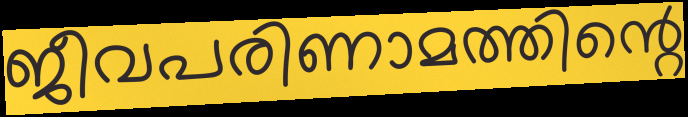
ജീവപരിണാമത്തിന്റെ